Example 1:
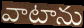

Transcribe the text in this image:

వాటాను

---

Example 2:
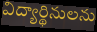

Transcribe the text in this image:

విద్యార్థినులను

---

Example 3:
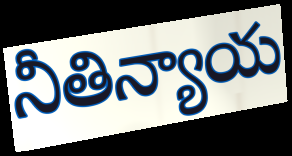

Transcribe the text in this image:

నీతిన్యాయ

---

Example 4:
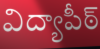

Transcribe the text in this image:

విద్యాపీఠ్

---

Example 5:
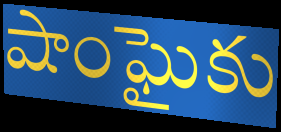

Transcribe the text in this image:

షాంఘైకు